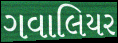
ગવાલિયર